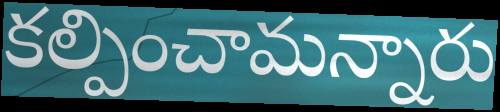
కల్పించామన్నారు